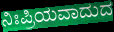
ನಿಃಪ್ರಿಯವಾದುದ